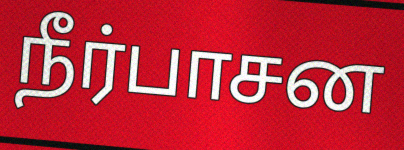
நீர்பாசன